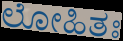
ಲೋಹಿತಃ